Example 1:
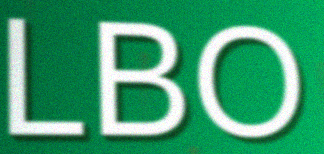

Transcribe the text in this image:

LBO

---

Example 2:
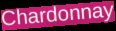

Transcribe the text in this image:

Chardonnay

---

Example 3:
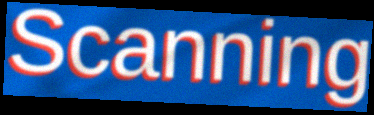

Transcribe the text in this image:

Scanning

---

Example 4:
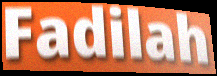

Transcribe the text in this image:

Fadilah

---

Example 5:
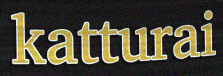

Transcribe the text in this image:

katturai